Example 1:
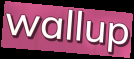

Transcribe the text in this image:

wallup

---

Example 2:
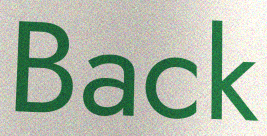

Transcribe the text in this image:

Back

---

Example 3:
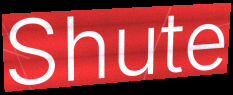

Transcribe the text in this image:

Shute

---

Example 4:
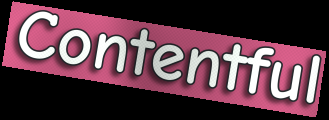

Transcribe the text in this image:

Contentful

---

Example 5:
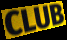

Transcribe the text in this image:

CLUB